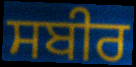
ਸਬੀਰ